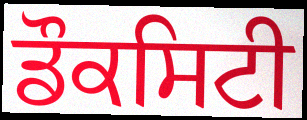
ਡੌਕਸਿਟੀ